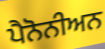
ਪੈਨੋਨੀਅਨ